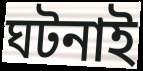
ঘটনাই